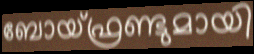
ബോയ്ഫ്രണ്ടുമായി